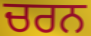
ਚਰਨ